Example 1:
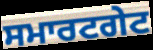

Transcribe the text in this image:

ਸਮਾਰਟਗੇਟ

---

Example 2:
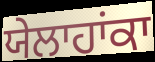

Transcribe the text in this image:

ਯੇਲਾਹਾਂਕਾ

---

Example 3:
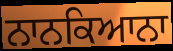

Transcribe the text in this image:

ਨਾਨਕਿਆਨਾ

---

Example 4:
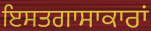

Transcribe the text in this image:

ਇਸਤਗਾਸਾਕਾਰਾਂ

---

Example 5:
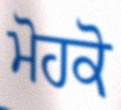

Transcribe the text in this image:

ਮੋਹਕੋ